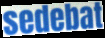
sedebat